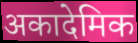
अकादेमिक